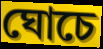
ঘোচে